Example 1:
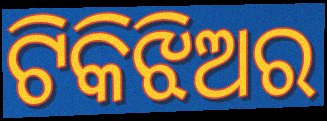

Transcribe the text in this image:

ଟିକିଝିଅର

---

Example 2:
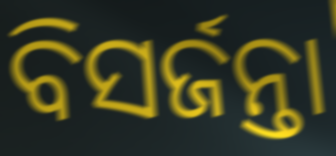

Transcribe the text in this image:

ବିସର୍ଜନ୍ତା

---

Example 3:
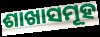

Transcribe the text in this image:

ଶାଖାସମୂହ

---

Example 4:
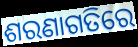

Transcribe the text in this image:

ଶରଣାଗତିରେ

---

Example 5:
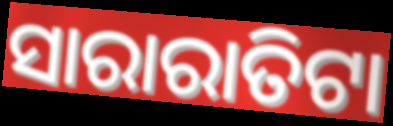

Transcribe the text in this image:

ସାରାରାତିଟା